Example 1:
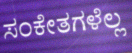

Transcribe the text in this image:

ಸಂಕೇತಗಳೆಲ್ಲ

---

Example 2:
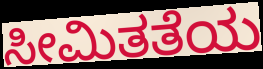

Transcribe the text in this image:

ಸೀಮಿತತೆಯ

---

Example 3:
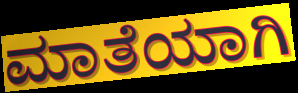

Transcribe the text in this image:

ಮಾತೆಯಾಗಿ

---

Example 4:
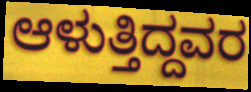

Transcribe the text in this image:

ಆಳುತ್ತಿದ್ದವರ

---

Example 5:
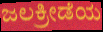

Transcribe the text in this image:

ಜಲಕ್ರೀಡೆಯ